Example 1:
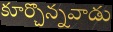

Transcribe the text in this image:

కూర్చొన్నవాడు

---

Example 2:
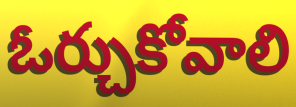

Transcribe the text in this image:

ఓర్చుకోవాలి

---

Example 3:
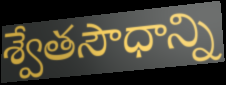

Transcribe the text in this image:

శ్వేతసౌధాన్ని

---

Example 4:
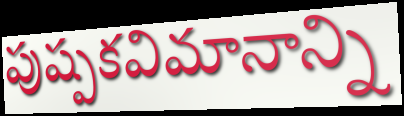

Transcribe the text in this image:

పుష్పకవిమానాన్ని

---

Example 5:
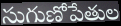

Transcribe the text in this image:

సుగుణోపేతుల